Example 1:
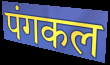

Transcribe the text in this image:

पंगकल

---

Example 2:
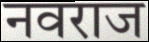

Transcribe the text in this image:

नवराज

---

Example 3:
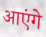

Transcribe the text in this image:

आएंगे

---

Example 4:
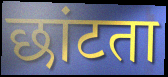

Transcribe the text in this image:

छांटता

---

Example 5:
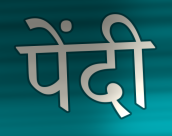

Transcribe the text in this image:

पेंदी